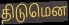
திடுமென